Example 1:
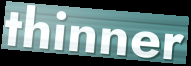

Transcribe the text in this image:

thinner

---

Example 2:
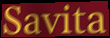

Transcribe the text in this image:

Savita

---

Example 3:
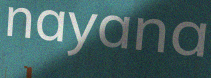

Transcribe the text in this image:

nayana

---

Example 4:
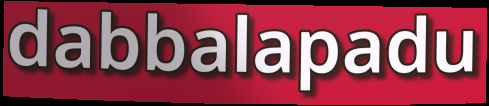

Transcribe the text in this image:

dabbalapadu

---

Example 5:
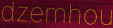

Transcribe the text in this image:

dzemhou